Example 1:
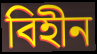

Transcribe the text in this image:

বিহীন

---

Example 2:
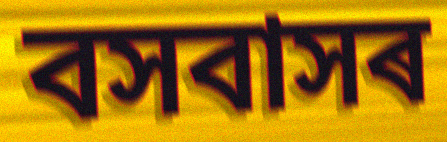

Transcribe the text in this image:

বসবাসৰ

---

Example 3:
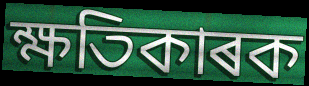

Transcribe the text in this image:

ক্ষতিকাৰক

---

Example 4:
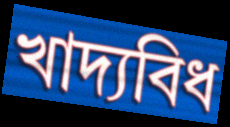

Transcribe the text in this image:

খাদ্যবিধ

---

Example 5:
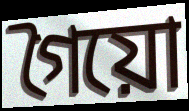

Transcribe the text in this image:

গৈয়ো